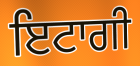
ਇਟਾਗੀ